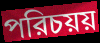
পরিচয়য়